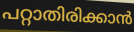
പറ്റാതിരിക്കാൻ